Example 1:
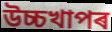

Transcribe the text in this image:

উচ্চখাপৰ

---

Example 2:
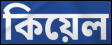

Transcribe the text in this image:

কিয়েল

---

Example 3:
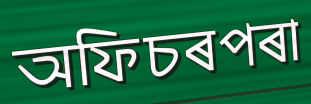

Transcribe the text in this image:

অফিচৰপৰা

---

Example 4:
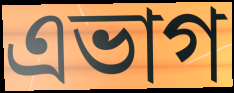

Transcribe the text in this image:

এভাগ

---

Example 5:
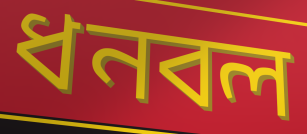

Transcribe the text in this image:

ধনবল